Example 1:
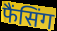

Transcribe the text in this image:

फैंसिंग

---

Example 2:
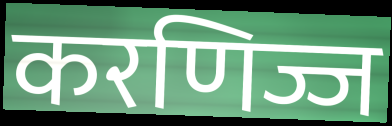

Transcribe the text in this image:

करणिज्ज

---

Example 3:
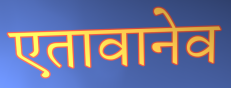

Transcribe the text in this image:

एतावानेव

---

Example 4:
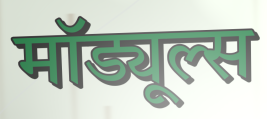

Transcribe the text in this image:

मॉड्यूल्स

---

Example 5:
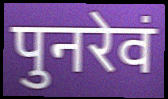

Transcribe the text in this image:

पुनरेवं